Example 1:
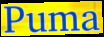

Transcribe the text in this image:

Puma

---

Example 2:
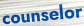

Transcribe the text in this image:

counselor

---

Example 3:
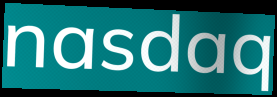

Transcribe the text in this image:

nasdaq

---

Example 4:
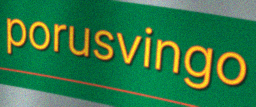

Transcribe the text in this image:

porusvingo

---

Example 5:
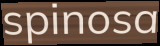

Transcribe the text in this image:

spinosa